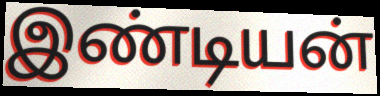
இண்டியன்